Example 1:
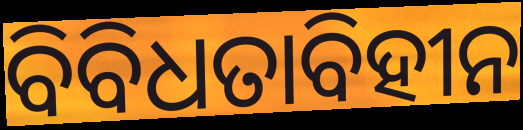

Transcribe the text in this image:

ବିବିଧତାବିହୀନ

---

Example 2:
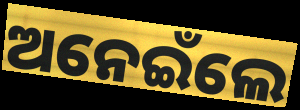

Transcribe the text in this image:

ଅନେଇଁଲେ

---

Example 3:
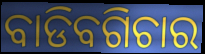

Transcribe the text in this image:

ବାଡିବଗିଚାର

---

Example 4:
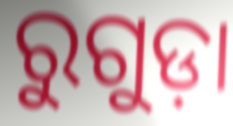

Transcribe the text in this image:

ରୁଗୁଡ଼ା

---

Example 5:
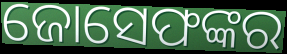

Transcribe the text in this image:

ଜୋସେଫଙ୍କର